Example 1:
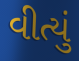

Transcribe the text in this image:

વીત્યું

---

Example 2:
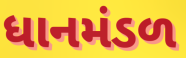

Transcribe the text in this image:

ધાનમંડળ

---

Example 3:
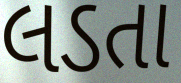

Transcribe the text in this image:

લડતા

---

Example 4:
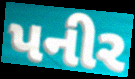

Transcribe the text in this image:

પનીર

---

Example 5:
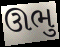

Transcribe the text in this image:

ઊભુ